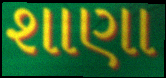
શાણા